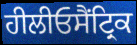
ਹੀਲੀਓਸੈਂਟ੍ਰਿਕ